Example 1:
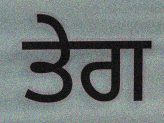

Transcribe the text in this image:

ਤੇਗ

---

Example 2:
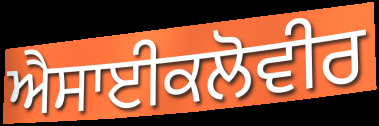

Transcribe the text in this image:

ਐਸਾਈਕਲੋਵੀਰ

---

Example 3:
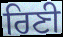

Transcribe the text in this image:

ਰਿਣੀ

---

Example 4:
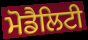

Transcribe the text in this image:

ਮੋਡੈਲਿਟੀ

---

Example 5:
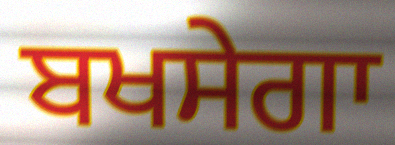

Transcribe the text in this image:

ਬਖਸੇਗਾ